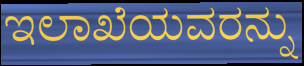
ಇಲಾಖೆಯವರನ್ನು